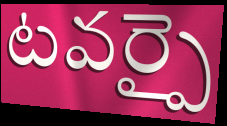
టవర్పై